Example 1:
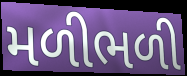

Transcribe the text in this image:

મળીભળી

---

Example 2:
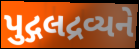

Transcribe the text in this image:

પુદ્ગલદ્રવ્યને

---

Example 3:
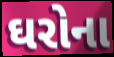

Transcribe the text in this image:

ઘરોના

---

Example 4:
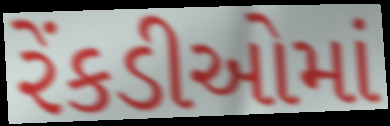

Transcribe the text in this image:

રેંકડીઓમાં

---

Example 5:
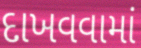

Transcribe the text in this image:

દાખવવામાં